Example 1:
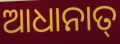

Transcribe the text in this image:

ଆଧାନାତ୍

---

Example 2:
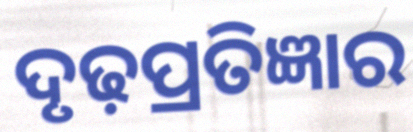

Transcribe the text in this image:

ଦୃଢ଼ପ୍ରତିଜ୍ଞାର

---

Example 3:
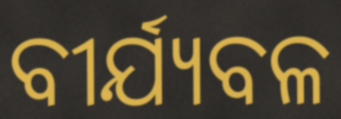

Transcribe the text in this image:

ବୀର୍ଯ୍ୟବଳ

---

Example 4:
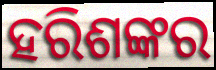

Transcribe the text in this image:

ହରିଶଙ୍କର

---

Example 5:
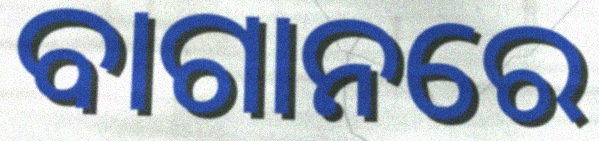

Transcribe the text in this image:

ବାଗାନରେ